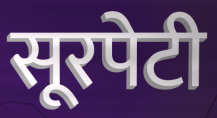
सूरपेटी